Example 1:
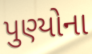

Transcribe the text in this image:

પુણ્યોના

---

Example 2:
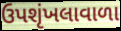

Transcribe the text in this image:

ઉપશૃંખલાવાળા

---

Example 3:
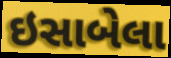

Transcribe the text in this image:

ઇસાબેલા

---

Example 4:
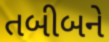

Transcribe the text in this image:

તબીબને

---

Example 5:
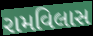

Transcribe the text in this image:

રામવિલાસ